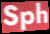
Sph